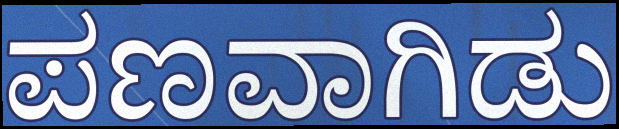
ಪಣವಾಗಿಡು